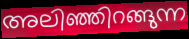
അലിഞ്ഞിറങ്ങുന്ന